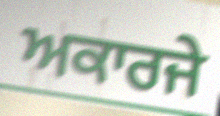
ਅਕਾਰਜੇ